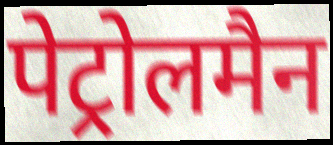
पेट्रोलमैन